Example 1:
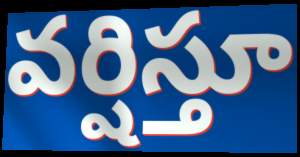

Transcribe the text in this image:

వర్షిస్తూ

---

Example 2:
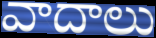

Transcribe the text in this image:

వాదాలు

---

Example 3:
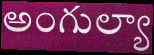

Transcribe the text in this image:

అంగుల్యా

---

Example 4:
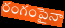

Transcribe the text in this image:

రంగంపైనా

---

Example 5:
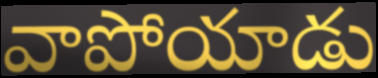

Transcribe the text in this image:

వాపోయాడు